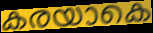
കരയാകെ